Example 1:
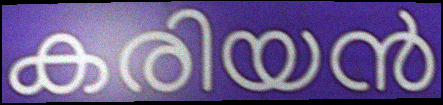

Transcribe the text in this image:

കരിയൻ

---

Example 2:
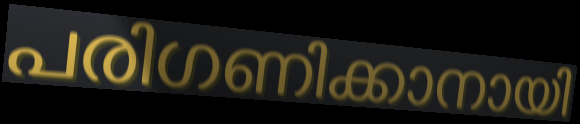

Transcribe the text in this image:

പരിഗണിക്കാനായി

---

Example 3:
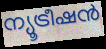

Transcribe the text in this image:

ന്യൂട്രീഷൻ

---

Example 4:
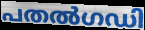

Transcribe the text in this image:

പതൽഗഡി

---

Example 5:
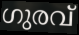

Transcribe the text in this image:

ഗുരവ്